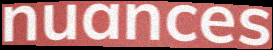
nuances